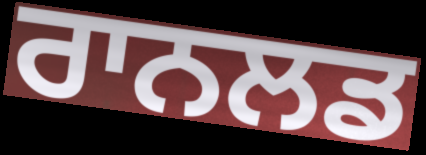
ਰਾਨਲਡ